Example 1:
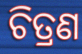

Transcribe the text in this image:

ଚିତ୍ରଣ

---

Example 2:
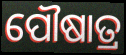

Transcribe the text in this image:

ପୌଷାତ୍ର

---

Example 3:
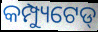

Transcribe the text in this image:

କମ୍ପ୍ୟୁଟେଡ୍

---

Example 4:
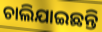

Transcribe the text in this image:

ଚାଲିଯାଇଛନ୍ତି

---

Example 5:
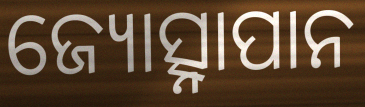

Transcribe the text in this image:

ଜ୍ୟୋତ୍ସ୍ନାପାନ